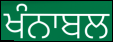
ਖੰਨਾਬਲ